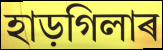
হাড়গিলাৰ